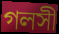
গলসী